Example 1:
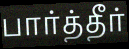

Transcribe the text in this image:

பார்த்தீர்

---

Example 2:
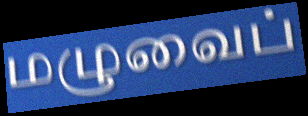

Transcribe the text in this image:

மழுவைப்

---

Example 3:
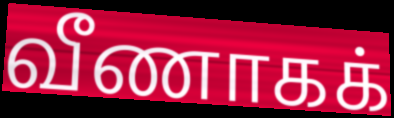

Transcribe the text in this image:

வீணாகக்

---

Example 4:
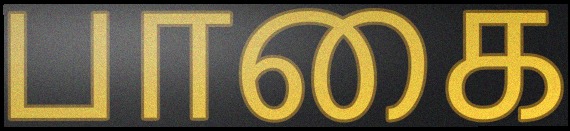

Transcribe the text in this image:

பாகை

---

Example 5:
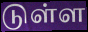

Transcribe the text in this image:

டுள்ள